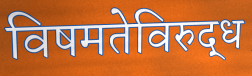
विषमतेविरुद्ध